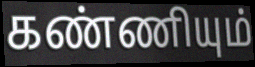
கண்ணியும்